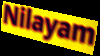
Nilayam